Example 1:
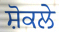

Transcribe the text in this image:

ਸ਼ੋਕਲੇ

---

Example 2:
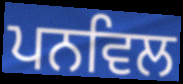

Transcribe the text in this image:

ਪਨਵਿਲ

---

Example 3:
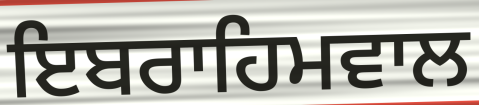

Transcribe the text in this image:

ਇਬਰਾਹਿਮਵਾਲ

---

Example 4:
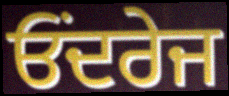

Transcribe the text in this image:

ਓਂਦਰੇਜ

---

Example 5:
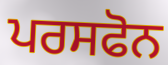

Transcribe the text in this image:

ਪਰਸਫੋਨ